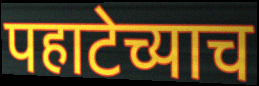
पहाटेच्याच